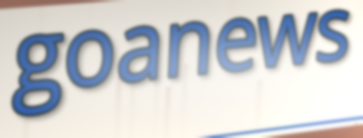
goanews